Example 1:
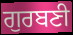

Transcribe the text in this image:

ਗੁਰਬਣੀ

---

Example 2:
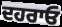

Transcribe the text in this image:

ਦਹਰਾਓ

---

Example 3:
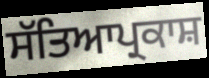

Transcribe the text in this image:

ਸੱਤਿਆਪ੍ਰਕਾਸ਼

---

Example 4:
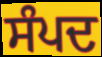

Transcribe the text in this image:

ਸੰਪਦ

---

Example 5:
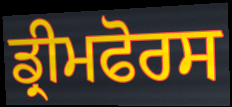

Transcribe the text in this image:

ਡ੍ਰੀਮਫੋਰਸ